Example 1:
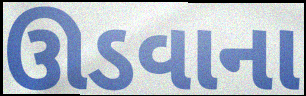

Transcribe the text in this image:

ઊડવાના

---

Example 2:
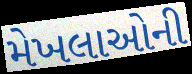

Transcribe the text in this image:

મેખલાઓની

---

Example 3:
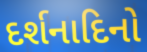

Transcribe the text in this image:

દર્શનાદિનો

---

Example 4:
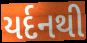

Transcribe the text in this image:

યર્દનથી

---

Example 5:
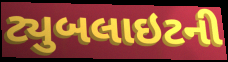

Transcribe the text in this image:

ટ્યુબલાઇટની